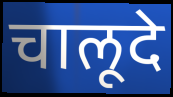
चालूदे